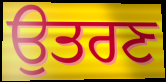
ਉਤਰਣ